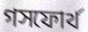
গসফোর্থ